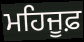
ਮਹਿਜੂਫ਼